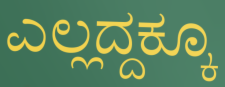
ಎಲ್ಲದ್ದಕ್ಕೂ